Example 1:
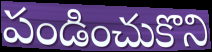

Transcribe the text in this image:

పండించుకొని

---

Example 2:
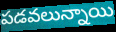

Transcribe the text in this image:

పడవలున్నాయి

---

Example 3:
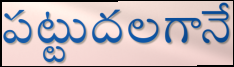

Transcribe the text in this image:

పట్టుదలగానే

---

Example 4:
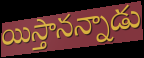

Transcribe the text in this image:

యిస్తానన్నాడు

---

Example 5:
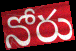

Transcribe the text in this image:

నోరు